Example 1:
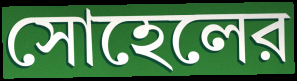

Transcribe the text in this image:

সোহেলের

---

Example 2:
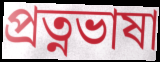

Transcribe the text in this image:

প্রত্নভাষা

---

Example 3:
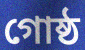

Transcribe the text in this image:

গোষ্ঠ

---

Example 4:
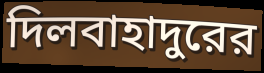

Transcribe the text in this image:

দিলবাহাদুরের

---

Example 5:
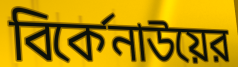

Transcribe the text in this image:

বির্কেনাউয়ের